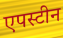
एपस्टीन